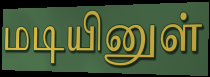
மடியினுள்